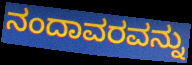
ನಂದಾವರವನ್ನು